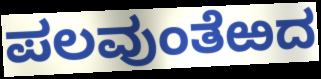
ಪಲವುಂತೆಱದ